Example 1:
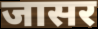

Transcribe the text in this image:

जासर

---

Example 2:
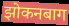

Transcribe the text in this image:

झोकनबाग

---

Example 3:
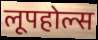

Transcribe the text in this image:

लूपहोल्स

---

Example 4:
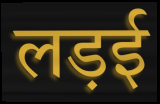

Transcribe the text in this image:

लड़ई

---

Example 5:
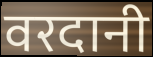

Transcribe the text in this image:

वरदानी